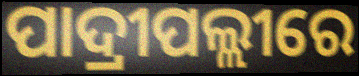
ପାଦ୍ରୀପଲ୍ଲୀରେ